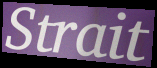
Strait